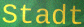
Stadt